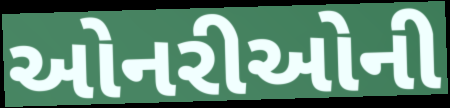
ઓનરીઓની